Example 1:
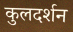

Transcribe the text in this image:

कुलदर्शन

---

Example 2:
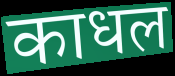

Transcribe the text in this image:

काधल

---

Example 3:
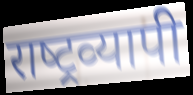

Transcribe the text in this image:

राष्‍ट्रव्‍यापी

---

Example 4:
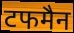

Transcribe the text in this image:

टफमैन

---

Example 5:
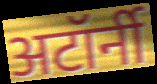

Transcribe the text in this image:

अटॉर्नी